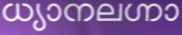
ധ്യാനലഗ്നാ